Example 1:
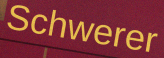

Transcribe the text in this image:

Schwerer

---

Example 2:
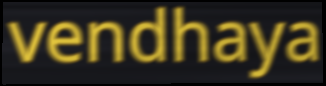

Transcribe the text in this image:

vendhaya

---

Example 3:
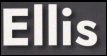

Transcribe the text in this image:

Ellis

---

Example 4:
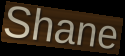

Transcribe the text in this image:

Shane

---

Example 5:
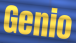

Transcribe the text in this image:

Genio